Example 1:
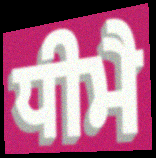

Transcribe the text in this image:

ਧੀਮੈ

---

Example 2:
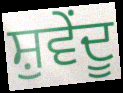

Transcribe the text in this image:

ਸ਼ੁਵੇਂਦੂ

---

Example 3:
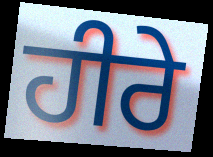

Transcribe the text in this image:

ਹੀਰੇ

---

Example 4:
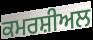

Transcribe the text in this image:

ਕਮਰਸ਼ੀਅਲ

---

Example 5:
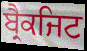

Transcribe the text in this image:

ਬ੍ਰੈਕਜਿਟ